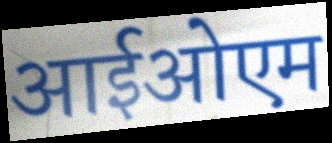
आईओएम